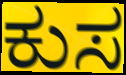
ಕುಸ